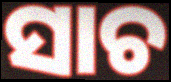
ସାଚ